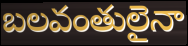
బలవంతులైనా